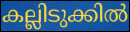
കല്ലിടുക്കിൽ